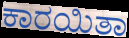
ಕಾರಯಿತಾ